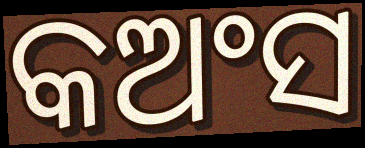
କଅଂସ